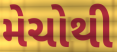
મેચોથી